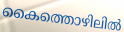
കൈത്തൊഴിലിൽ